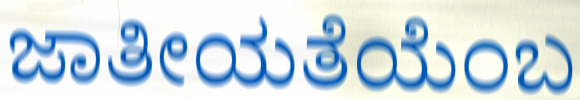
ಜಾತೀಯತೆಯೆಂಬ